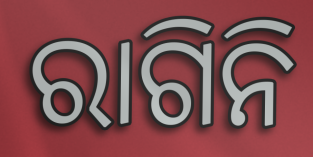
ରାଗିନି